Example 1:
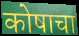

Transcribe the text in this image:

कोषाचा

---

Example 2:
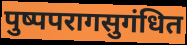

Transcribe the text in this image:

पुष्पपरागसुगंधित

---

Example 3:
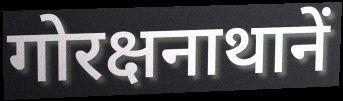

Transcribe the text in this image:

गोरक्षनाथानें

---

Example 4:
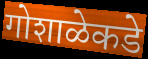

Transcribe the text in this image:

गोशाळेकडे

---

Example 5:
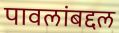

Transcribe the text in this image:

पावलांबद्दल